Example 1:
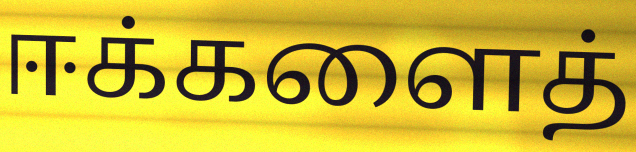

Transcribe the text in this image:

ஈக்களைத்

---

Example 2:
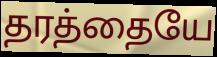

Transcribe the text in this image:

தரத்தையே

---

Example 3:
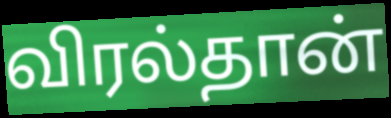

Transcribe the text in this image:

விரல்தான்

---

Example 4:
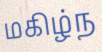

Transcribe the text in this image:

மகிழ்ந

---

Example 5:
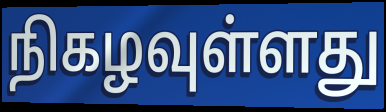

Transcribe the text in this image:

நிகழவுள்ளது